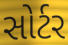
સોર્ટર